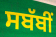
ਸਬੱਬੀਂ